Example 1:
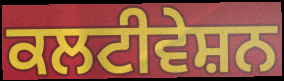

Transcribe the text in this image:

ਕਲਟੀਵੇਸ਼ਨ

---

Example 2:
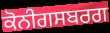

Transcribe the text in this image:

ਕੋਨੀਗਸਬਰਗ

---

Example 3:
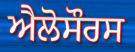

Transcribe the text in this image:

ਐਲੋਸੌਰਸ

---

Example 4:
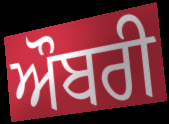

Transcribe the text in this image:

ਔਬਰੀ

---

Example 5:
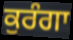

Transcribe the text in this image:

ਕੁਰੰਗਾ